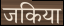
जकिया